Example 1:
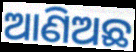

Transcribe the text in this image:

ଆଣିଅଛ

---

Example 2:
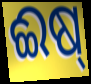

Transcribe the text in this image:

ଈଷ୍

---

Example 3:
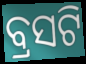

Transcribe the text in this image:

ବ୍ରସଟି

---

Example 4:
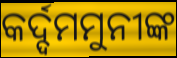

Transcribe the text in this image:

କର୍ଦ୍ଦମମୁନୀଙ୍କ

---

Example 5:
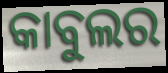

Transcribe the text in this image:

କାବୁଲର